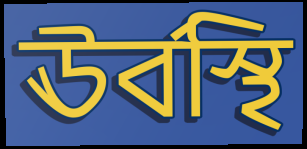
ঊর্বস্থি